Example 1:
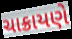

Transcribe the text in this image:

ચાક્રાયણે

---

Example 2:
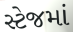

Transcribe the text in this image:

સ્ટેજમાં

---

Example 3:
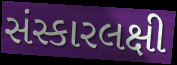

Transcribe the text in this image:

સંસ્કારલક્ષી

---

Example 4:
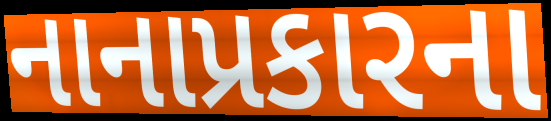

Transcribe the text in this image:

નાનાપ્રકારના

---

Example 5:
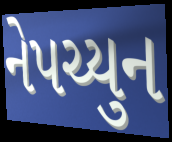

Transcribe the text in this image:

નેપચ્યુન